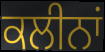
ਕਲੀਨਾਂ